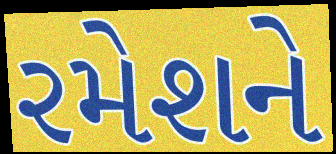
રમેશને